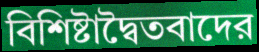
বিশিষ্টাদ্বৈতবাদের